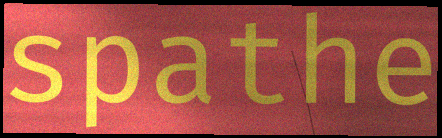
spathe